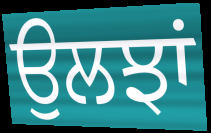
ਉਲਝਾਂ